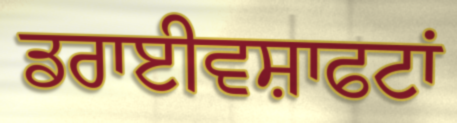
ਡਰਾਈਵਸ਼ਾਫਟਾਂ